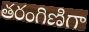
తరంగిణిగా